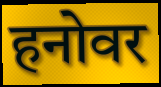
हनोवर